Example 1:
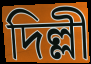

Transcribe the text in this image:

দিল্লী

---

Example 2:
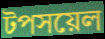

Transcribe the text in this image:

টপসয়েল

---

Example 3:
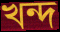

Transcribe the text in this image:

খন্দ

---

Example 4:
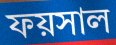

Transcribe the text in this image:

ফয়সাল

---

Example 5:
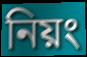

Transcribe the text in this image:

নিয়ং